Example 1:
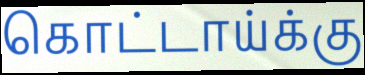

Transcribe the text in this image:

கொட்டாய்க்கு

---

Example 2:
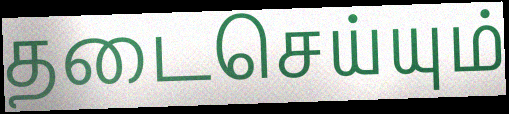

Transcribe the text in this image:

தடைசெய்யும்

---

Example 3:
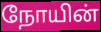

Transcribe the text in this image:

நோயின்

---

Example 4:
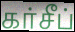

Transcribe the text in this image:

கர்சீப்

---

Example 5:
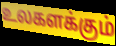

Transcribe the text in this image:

உலகளக்கும்